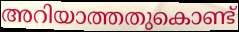
അറിയാത്തതുകൊണ്ട്